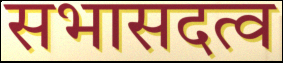
सभासदत्व